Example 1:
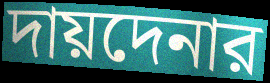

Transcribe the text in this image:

দায়দেনার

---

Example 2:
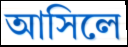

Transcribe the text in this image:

আসিলে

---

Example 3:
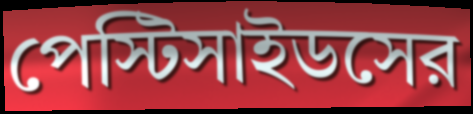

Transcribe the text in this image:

পেস্টিসাইডসের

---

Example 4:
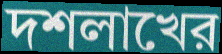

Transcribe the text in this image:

দশলাখের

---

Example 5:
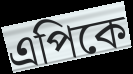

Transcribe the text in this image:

এপিকে